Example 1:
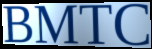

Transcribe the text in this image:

BMTC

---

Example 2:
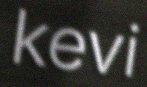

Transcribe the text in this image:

kevi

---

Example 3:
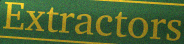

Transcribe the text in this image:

Extractors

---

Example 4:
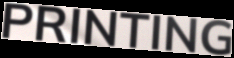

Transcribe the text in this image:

PRINTING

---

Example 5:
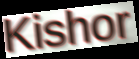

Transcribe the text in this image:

Kishor